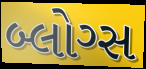
બ્લોગ્સ